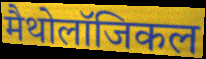
मैथोलॉजिकल